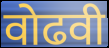
वोढवी